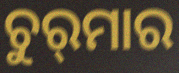
ଚୁର୍‍ମାର